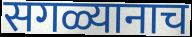
सगळ्यानाच